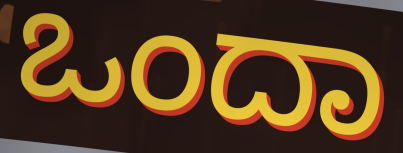
ಒಂದಾ